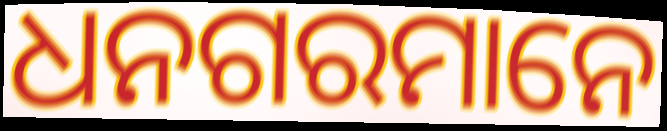
ଧନଗରମାନେ